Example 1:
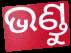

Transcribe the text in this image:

ଭଣ୍ଡୁ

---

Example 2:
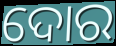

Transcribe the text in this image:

ଦୋର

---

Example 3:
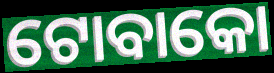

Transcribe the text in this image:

ଟୋବାକୋ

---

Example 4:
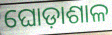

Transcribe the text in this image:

ଘୋଡ଼ାଶାଳ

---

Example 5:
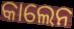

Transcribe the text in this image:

କାଲେନ